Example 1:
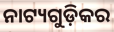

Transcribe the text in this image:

ନାଟ୍ୟଗୁଡ଼ିକର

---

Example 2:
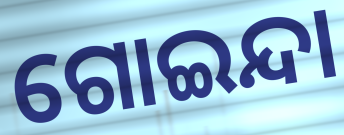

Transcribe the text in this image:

ଗୋଇନ୍ଦା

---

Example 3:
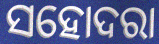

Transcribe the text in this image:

ସହୋଦରା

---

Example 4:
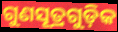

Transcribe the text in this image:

ଗୁଣସୂତ୍ରଗୁଡ଼ିକ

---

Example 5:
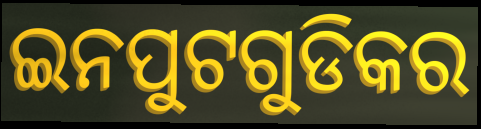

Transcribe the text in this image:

ଇନପୁଟଗୁଡିକର